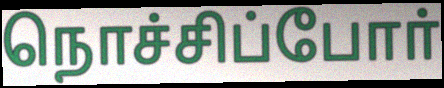
நொச்சிப்போர்